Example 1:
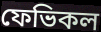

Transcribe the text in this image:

ফেভিকল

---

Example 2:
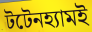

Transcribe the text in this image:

টটেনহ্যামই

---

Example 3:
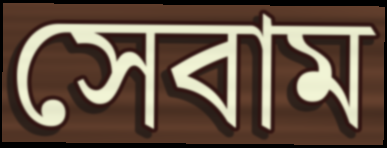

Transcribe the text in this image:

সেবাম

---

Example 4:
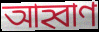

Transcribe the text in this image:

আহ্বাণ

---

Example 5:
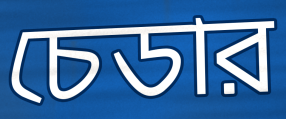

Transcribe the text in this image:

চেডার